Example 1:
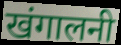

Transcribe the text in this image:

खंगालनी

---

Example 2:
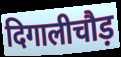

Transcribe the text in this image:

दिगालीचौड़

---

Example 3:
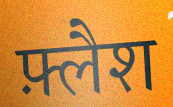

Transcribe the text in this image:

फ़्लैश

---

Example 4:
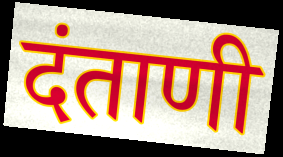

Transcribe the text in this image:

दंताणी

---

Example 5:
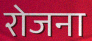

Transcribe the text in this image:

रोजना